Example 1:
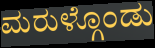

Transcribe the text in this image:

ಮರುಳ್ಗೊಂಡು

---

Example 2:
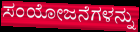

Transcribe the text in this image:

ಸಂಯೋಜನೆಗಳನ್ನು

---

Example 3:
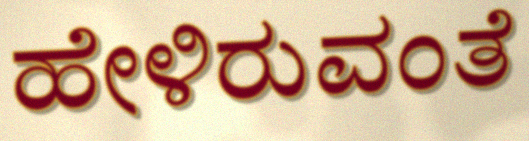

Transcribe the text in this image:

ಹೇಳಿರುವಂತೆ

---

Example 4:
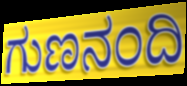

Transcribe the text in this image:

ಗುಣನಂದಿ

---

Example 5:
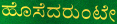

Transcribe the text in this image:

ಹೊಸೆದರುಂಟೇ